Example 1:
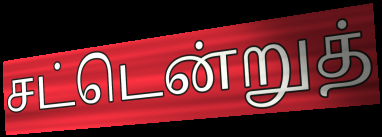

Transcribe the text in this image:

சட்டென்றுத்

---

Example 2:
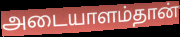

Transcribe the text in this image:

அடையாளம்தான்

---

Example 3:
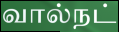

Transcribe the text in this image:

வால்நட்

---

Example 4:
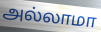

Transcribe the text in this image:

அல்லாமா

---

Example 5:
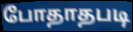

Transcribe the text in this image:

போதாதபடி